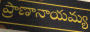
ప్రాణానాయమ్య